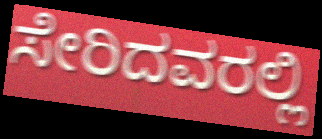
ಸೇರಿದವರಲ್ಲಿ